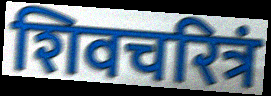
शिवचरित्रं